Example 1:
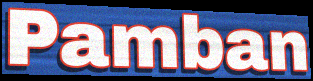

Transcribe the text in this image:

Pamban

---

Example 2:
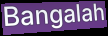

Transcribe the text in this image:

Bangalah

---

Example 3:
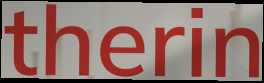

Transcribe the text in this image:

therin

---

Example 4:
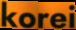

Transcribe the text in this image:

korei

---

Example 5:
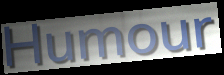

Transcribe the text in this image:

Humour